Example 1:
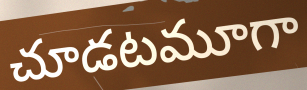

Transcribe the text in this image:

చూడటమూగా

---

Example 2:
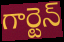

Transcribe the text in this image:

గార్టెన్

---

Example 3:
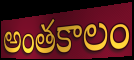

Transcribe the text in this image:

అంతకాలం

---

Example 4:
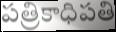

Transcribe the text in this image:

పత్రికాధిపతి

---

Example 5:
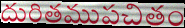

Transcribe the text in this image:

దురితముపచితం